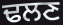
ਢਲਣ